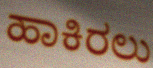
ಹಾಕಿರಲು